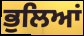
ਭੁਲਿਆਂ